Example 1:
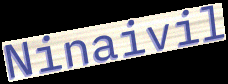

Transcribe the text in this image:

Ninaivil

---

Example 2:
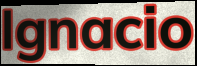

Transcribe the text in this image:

Ignacio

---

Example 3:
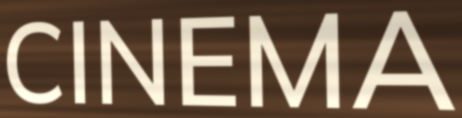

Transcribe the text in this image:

CINEMA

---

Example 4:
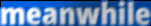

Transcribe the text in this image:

meanwhile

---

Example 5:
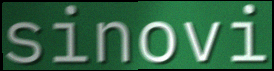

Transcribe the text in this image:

sinovi